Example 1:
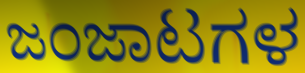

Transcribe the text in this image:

ಜಂಜಾಟಗಳ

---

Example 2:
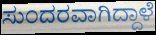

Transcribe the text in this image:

ಸುಂದರವಾಗಿದ್ದಾಳೆ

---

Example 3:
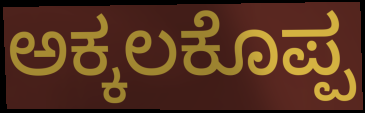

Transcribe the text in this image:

ಅಕ್ಕಲಕೊಪ್ಪ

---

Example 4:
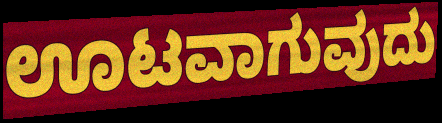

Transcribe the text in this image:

ಊಟವಾಗುವುದು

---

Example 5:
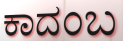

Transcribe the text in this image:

ಕಾದಂಬ